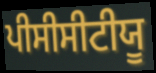
ਪੀਸੀਸੀਟੀਯੂ